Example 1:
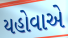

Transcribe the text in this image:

યહોવાએ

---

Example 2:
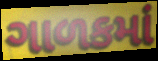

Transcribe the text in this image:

ગાળકમાં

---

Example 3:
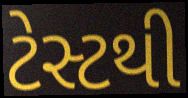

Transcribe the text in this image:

ટેસ્ટથી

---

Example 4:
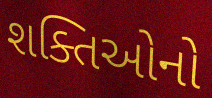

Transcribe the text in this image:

શક્તિઓનો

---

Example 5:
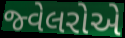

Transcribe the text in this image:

જ્વેલરોએ